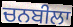
ਚਨਬੀਲਾ